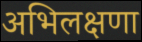
अभिलक्षणा